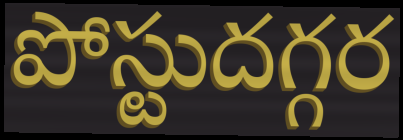
పోస్టుదగ్గర